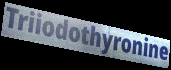
Triiodothyronine